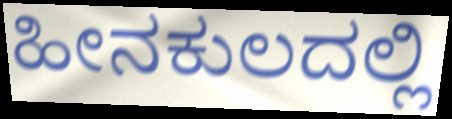
ಹೀನಕುಲದಲ್ಲಿ